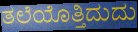
ತಲೆಯೊತ್ತಿದುದು